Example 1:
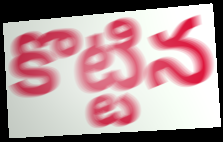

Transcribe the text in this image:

కొట్టిన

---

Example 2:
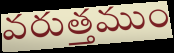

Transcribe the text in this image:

వరుత్తముం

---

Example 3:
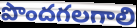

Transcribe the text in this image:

పొందగలగాలి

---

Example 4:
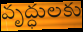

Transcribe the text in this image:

వృద్ధులకు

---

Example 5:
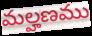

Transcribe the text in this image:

మల్హణము